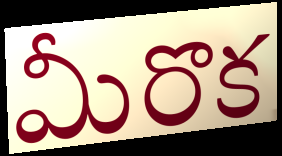
మీరొక